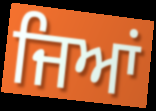
ਜਿਆਂ